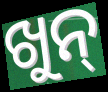
ଖୁନ୍